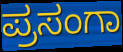
ಪ್ರಸಂಗಾ